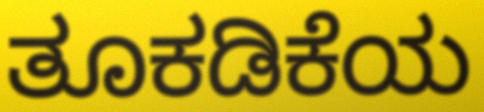
ತೂಕಡಿಕೆಯ